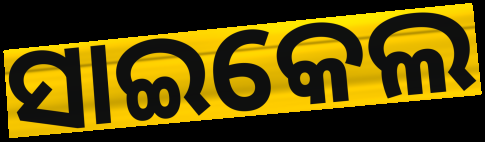
ସାଇକେଲ